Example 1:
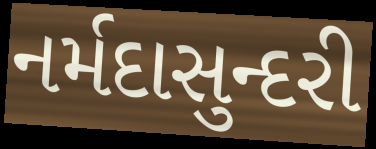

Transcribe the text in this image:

નર્મદાસુન્દરી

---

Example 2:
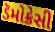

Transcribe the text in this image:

ડૅમોક્રેસી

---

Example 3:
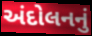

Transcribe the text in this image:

અંદોલનનું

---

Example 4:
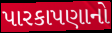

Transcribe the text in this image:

પારકાપણાનો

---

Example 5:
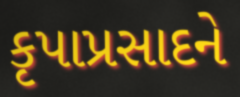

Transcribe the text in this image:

કૃપાપ્રસાદને